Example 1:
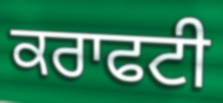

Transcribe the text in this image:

ਕਰਾਫਟੀ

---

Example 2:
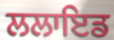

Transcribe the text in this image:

ਲਲਾਇਡ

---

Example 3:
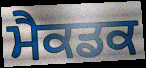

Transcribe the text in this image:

ਮੈਕਡਕ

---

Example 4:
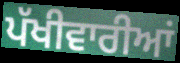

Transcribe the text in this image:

ਪੱਖੀਵਾਰੀਆਂ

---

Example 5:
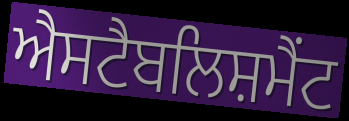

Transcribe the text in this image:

ਐਸਟੈਬਲਿਸ਼ਮੈਂਟ